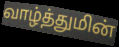
வாழ்த்துமின்